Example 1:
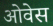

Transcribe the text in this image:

ओवेस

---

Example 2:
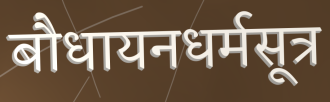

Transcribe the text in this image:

बौधायनधर्मसूत्र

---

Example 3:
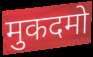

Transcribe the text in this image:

मुकदमो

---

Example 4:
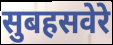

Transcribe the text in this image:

सुबहसवेरे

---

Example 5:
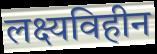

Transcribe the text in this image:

लक्ष्यविहीन